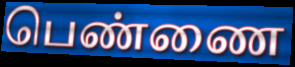
பெண்ணை